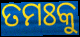
ତମଃକୁ